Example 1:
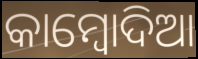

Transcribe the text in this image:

କାମ୍ବୋଦିଆ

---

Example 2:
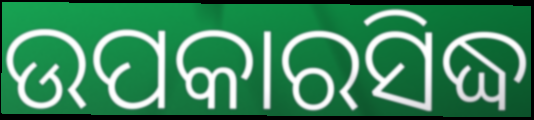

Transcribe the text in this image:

ଉପକାରସିଦ୍ଧ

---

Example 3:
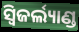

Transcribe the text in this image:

ସ୍ୱିଜର୍ଲ୍ୟାଣ୍ଡ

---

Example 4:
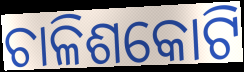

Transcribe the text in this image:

ଚାଳିଶକୋଟି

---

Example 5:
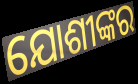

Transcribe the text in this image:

ଯୋଶୀଙ୍କର